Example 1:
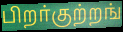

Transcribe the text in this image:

பிறர்குற்றங்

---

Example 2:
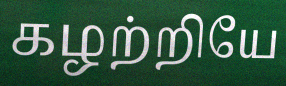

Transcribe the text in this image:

கழற்றியே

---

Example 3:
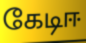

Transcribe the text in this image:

கேடிஈ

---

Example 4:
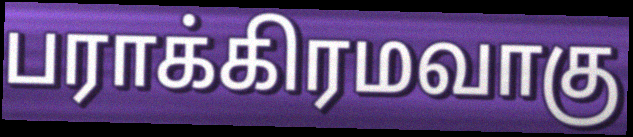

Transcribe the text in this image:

பராக்கிரமவாகு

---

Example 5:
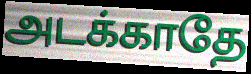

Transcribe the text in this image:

அடக்காதே